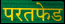
परतफेड